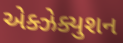
એક્ઝેક્યુશન